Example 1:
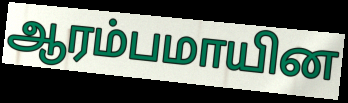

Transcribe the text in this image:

ஆரம்பமாயின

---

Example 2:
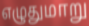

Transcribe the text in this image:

எழுதுமாறு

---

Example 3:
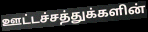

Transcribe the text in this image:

ஊட்டச்சத்துக்களின்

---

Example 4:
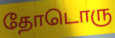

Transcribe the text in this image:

தோடொரு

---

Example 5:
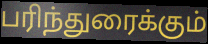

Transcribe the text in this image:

பரிந்துரைக்கும்